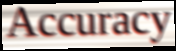
Accuracy